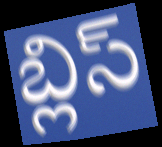
బ్లిస్